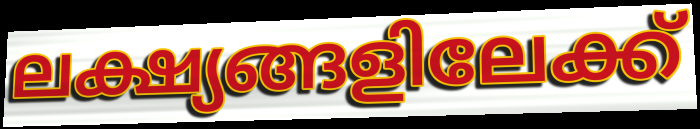
ലക്ഷ്യങ്ങളിലേക്ക്